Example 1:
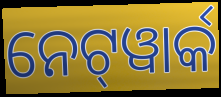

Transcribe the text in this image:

ନେଟ୍‌ୱାର୍କ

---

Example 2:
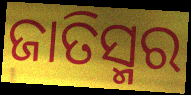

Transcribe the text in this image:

ଜାତିସ୍ମର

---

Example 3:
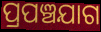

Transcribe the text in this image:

ପ୍ରପଞ୍ଚଯାଗ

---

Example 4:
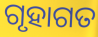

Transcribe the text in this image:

ଗୃହାଗତ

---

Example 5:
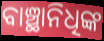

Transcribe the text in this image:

ବାଞ୍ଛାନିଧିଙ୍କ